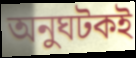
অনুঘটকই